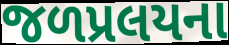
જળપ્રલયના